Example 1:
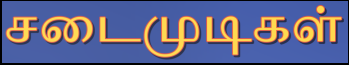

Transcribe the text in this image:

சடைமுடிகள்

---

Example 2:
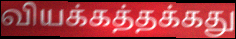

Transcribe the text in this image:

வியக்கத்தக்கது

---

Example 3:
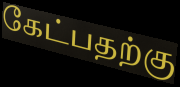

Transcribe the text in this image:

கேட்பதற்கு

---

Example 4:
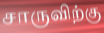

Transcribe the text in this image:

சாருவிற்கு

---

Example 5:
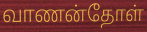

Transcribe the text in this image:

வாணன்தோள்